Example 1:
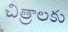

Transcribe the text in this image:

చిత్రాలకు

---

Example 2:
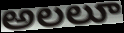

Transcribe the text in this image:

అలలూ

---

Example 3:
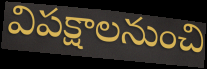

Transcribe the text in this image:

విపక్షాలనుంచి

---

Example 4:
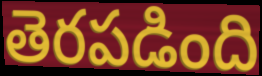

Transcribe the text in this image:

తెరపడింది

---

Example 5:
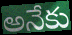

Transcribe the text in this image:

అనేకు